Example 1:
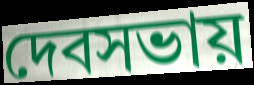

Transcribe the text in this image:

দেবসভায়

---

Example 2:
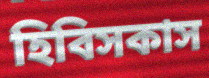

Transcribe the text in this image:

হিবিসকাস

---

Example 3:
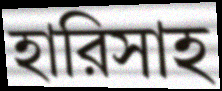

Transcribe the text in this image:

হারিসাহ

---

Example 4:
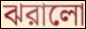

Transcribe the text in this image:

ঝরালো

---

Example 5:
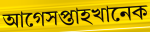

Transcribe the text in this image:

আগেসপ্তাহখানেক